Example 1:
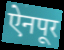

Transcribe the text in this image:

ऐनपूर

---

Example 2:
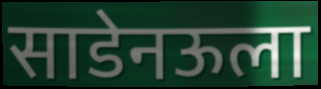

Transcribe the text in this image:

साडेनऊला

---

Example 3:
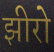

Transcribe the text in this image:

झीरो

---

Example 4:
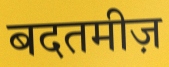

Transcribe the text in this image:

बदतमीज़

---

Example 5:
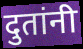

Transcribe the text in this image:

दुतांनी